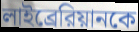
লাইব্রেরিয়ানকে